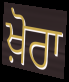
ਖ਼ੋਰਾ